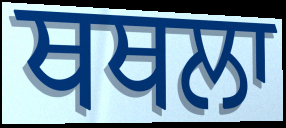
ਥਥਲਾ